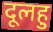
दूलहु